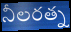
నీలరత్న